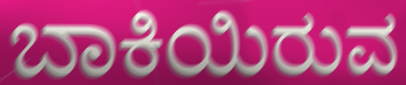
ಬಾಕಿಯಿರುವ